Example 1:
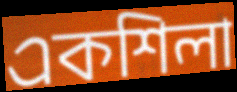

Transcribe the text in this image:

একশিলা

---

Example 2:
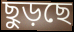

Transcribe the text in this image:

ছুড়ছে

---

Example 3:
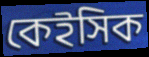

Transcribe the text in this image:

কেইসিক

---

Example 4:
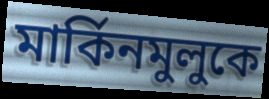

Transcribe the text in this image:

মার্কিনমুলুকে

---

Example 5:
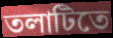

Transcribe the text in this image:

তলাটিতে